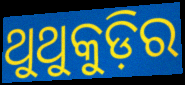
ଥୁଥୁକୁଡ଼ିର